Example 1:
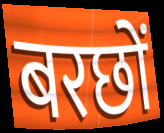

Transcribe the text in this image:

बरछों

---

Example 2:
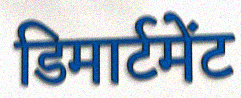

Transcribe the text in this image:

डिमार्टमेंट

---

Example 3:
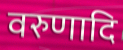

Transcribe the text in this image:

वरुणादि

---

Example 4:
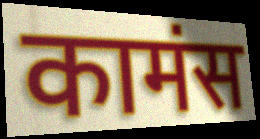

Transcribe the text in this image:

कामंस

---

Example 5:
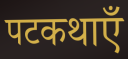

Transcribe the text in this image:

पटकथाएँ